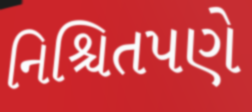
નિશ્ચિતપણે